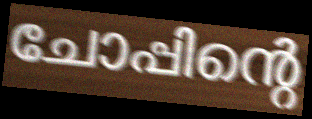
ചോപ്പിന്റെ